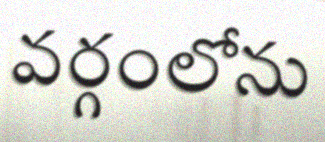
వర్గంలోను